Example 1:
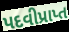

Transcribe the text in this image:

પદવીપ્રાપ્ત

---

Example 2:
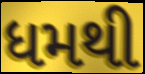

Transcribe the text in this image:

ધમથી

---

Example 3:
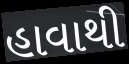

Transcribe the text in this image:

હાવાથી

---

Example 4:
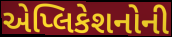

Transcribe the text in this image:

એપ્લિકેશનોની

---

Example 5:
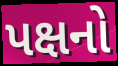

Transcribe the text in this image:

પક્ષનો